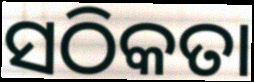
ସଠିକତା